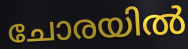
ചോരയിൽ